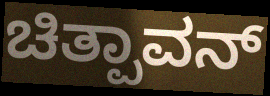
ಚಿತ್ಪಾವನ್